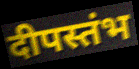
दीपस्तंभ